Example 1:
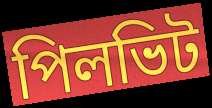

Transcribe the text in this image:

পিলভিট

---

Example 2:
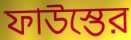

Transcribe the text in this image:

ফাউস্তের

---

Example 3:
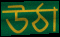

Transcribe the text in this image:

উঠা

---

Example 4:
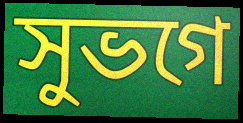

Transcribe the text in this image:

সুভগে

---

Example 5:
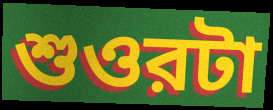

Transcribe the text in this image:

শুওরটা